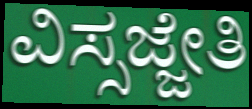
ವಿಸ್ಸಜ್ಜೇತಿ